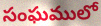
సంఘములో